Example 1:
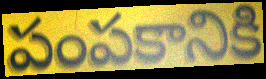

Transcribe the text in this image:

పంపకానికి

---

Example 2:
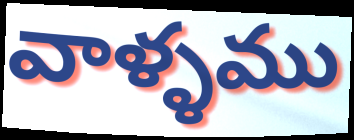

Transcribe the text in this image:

వాళ్ళము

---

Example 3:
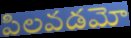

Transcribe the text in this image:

పిలవడమో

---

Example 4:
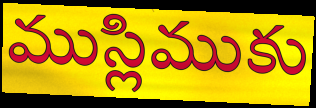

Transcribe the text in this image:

ముస్లిముకు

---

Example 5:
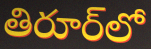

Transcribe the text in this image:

తిరూర్‌లో